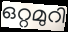
ഒറ്റമുറി